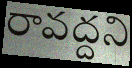
రావద్దని